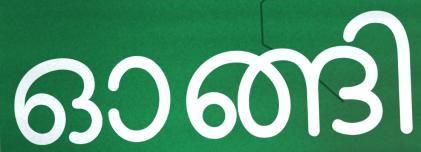
ഓങ്ങി